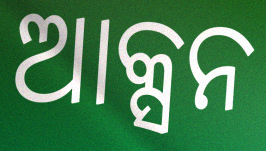
ଆକ୍ସନ